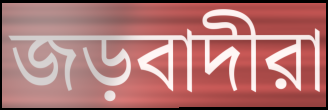
জড়বাদীরা